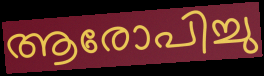
ആരോപിച്ചു